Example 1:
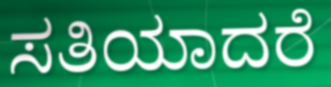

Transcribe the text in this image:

ಸತಿಯಾದರೆ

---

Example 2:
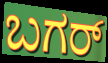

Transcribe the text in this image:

ಬಗರ್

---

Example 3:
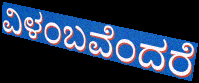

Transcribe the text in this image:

ವಿಳಂಬವೆಂದರೆ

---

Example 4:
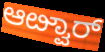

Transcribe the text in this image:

ಆೞ್ವಾರ್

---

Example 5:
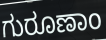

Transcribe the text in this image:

ಗುರೂಣಾಂ